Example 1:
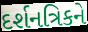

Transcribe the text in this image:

દર્શનત્રિકને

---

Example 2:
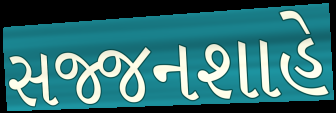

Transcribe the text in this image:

સજ્જનશાહે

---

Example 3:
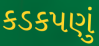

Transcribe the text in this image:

કડકપણું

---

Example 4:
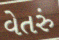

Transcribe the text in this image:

વેતરું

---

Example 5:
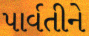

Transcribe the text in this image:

પાર્વતીને